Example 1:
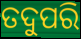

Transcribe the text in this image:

ତଦୁପରି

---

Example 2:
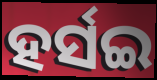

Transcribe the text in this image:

ହର୍ସଇ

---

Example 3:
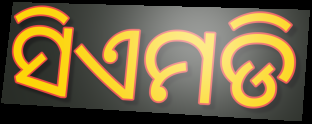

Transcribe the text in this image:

ସିଏମଡି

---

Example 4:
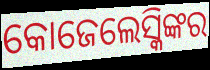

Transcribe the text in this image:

କୋଜେଲେସ୍କିଙ୍କର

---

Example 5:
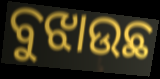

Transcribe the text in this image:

ବୁଝାଉଛ